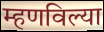
म्हणविल्या